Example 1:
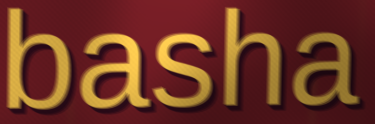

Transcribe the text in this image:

basha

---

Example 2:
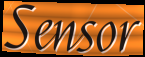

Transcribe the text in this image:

Sensor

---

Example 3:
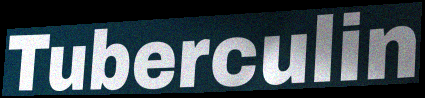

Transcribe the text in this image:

Tuberculin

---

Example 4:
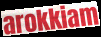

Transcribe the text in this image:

arokkiam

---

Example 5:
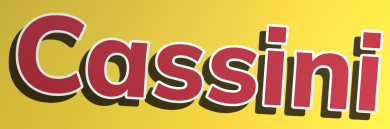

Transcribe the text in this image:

Cassini